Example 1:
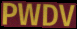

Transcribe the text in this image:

PWDV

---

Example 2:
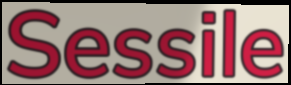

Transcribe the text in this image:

Sessile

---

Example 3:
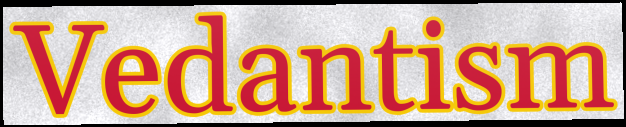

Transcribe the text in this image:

Vedantism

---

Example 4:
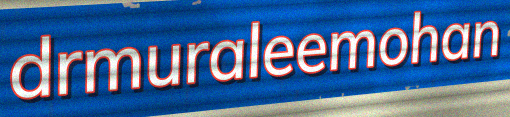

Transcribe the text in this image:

drmuraleemohan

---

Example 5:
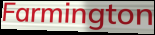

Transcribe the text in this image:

Farmington